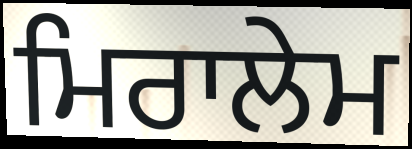
ਮਿਰਾਲੇਮ